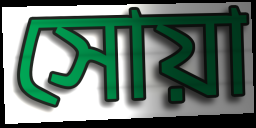
সোয়া